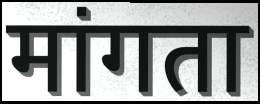
मांगता